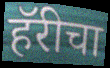
हॅरीचा